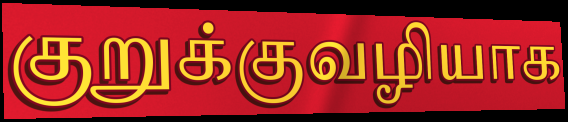
குறுக்குவழியாக